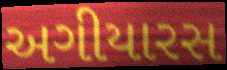
અગીયારસ